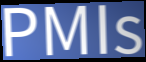
PMIs